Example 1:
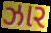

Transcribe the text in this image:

ઝાર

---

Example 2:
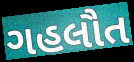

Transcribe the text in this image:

ગહલૌત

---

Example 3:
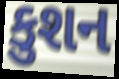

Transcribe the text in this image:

કુશન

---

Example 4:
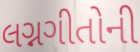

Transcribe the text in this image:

લગ્નગીતોની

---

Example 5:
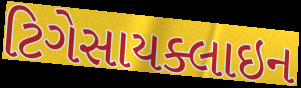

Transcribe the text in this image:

ટિગેસાયક્લાઇન